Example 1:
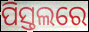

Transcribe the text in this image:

ପିସ୍ତଲରେ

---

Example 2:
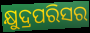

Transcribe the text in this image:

କ୍ଷୁଦ୍ରପରିସର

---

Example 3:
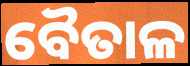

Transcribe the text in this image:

ବୈତାଳ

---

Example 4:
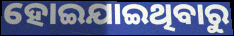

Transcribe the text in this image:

ହୋଇଯାଇଥିବାରୁ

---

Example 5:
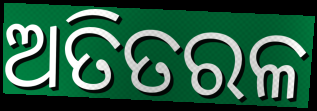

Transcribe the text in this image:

ଅତିତରଳ